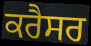
ਕਰੈਸਰ